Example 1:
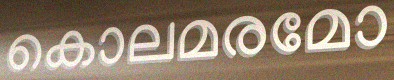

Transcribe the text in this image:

കൊലമരമോ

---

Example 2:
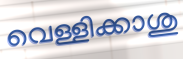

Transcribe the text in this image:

വെള്ളിക്കാശു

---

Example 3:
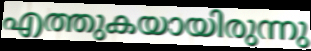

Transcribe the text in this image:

എത്തുകയായിരുന്നു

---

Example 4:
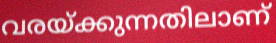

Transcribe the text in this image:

വരയ്ക്കുന്നതിലാണ്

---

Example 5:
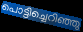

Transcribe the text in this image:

പൊട്ടിച്ചെറിഞ്ഞു